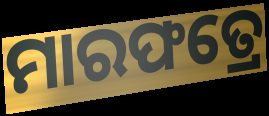
ମାରଫତ୍ରେ